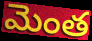
మెంత